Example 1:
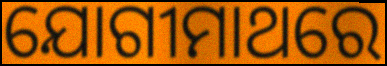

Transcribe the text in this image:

ଯୋଗୀମାଥରେ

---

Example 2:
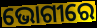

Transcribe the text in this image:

ଭୋଗୀରେ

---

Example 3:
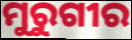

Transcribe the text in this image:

ମୁରୁଗୀର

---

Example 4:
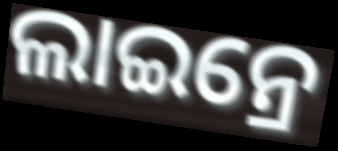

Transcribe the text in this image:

ଲାଇନ୍ରେ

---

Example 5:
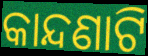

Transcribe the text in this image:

କାନ୍ଦଣାଟି